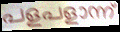
പളപളാന്ന്